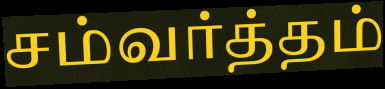
சம்வர்த்தம்